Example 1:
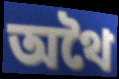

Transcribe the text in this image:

অথৈ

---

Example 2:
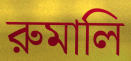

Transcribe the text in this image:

রুমালি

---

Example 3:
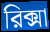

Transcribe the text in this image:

রিক্সা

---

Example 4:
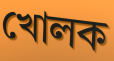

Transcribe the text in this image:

খোলক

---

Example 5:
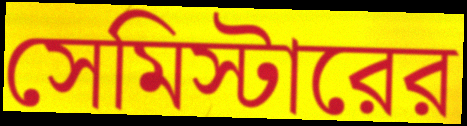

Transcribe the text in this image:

সেমিস্টারের